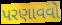
પરણાવવો